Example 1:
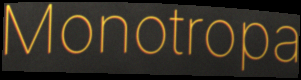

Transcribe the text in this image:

Monotropa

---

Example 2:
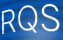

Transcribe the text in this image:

RQS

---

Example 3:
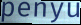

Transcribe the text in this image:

penyu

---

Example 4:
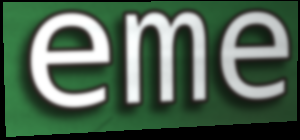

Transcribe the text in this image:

eme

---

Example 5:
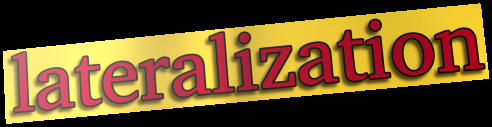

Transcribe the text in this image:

lateralization